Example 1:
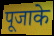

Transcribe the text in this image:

पूजाके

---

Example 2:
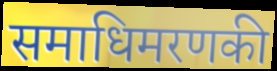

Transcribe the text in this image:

समाधिमरणकी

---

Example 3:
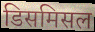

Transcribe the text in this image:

डिसमिसल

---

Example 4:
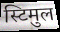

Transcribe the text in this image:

स्टिमुल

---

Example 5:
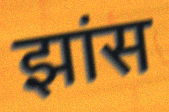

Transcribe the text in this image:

झांस